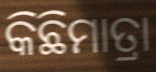
କିଛିମାତ୍ରା